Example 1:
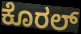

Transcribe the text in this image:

ಕೊರಲ್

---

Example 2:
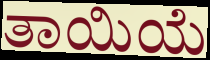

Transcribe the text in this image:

ತಾಯಿಯೆ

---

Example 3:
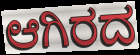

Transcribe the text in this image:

ಆಗಿರದ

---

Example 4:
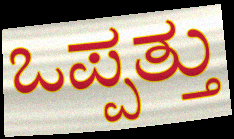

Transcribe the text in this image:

ಒಪ್ಪತ್ತು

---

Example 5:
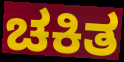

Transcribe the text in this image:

ಚಕಿತ